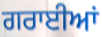
ਗਰਾਈਆਂ